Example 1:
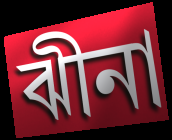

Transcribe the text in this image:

ঝীনা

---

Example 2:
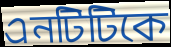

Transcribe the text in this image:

এনটিটিকে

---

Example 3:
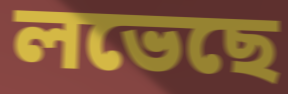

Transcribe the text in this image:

লভেছে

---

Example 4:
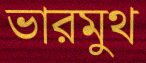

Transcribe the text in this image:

ভারমুথ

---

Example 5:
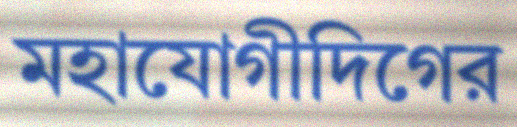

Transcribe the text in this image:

মহাযোগীদিগের